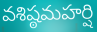
వశిష్ఠమహర్షి